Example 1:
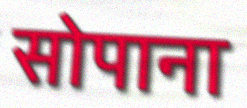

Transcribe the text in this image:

सोपाना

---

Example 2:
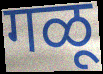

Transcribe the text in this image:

गळू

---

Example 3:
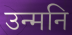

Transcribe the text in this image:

उन्मनि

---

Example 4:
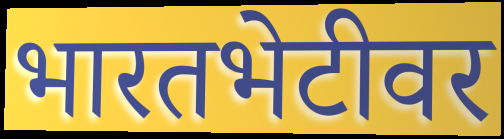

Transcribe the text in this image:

भारतभेटीवर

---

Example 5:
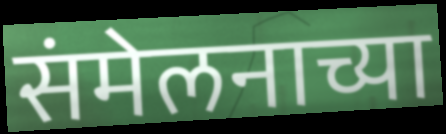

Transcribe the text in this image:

संमेलनाच्या